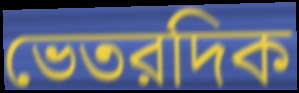
ভেতরদিক